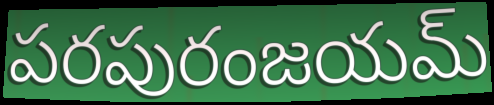
పరపురంజయమ్